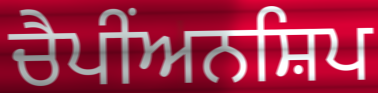
ਚੈਪੀਂਅਨਸ਼ਿਪ